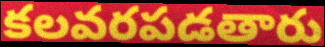
కలవరపడతారు